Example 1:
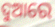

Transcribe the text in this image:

ଦୁଆରେ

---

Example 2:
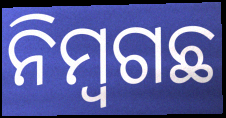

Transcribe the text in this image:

ନିମ୍ୱଗଛ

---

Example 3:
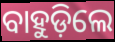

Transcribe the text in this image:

ବାହୁଡ଼ିଲେ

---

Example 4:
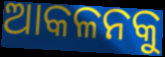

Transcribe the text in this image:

ଆକଳନକୁ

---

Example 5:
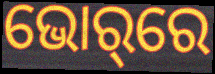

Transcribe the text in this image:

ଭୋର୍‌ରେ